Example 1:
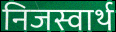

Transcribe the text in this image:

निजस्वार्थ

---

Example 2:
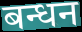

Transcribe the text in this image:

बन्धन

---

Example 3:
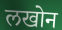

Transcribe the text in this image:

लखोन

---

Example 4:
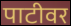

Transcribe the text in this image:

पाटीवर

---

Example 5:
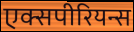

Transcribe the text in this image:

एक्सपीरियन्स